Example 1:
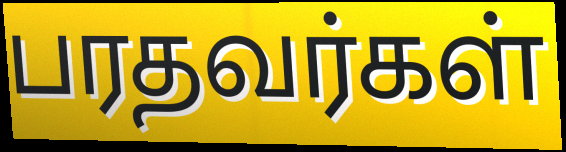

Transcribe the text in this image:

பரதவர்கள்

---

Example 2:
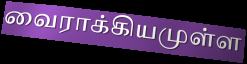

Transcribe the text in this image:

வைராக்கியமுள்ள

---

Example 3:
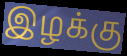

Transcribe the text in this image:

இழக்கு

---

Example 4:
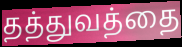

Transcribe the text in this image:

தத்துவத்தை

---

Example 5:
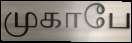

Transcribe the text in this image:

முகாபே